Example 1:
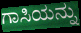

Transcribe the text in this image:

ಗಾಸಿಯನ್ನು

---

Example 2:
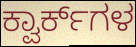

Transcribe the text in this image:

ಕ್ವಾರ್ಕ್‌ಗಳ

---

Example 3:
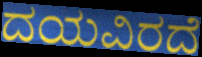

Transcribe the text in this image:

ದಯವಿರದೆ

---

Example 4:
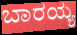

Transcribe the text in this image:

ಬಾರಯ್ಯ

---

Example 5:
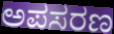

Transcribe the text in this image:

ಅಪಸರಣ